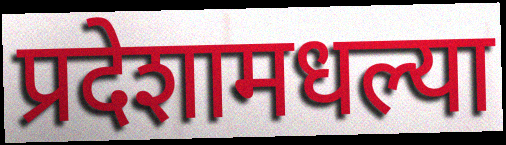
प्रदेशामधल्या